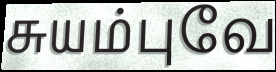
சுயம்புவே